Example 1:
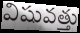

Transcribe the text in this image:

విషువత్తు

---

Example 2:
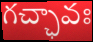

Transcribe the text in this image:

గచ్ఛావః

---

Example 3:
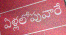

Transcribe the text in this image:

ఏళ్లలోపువారే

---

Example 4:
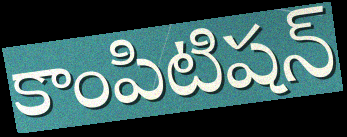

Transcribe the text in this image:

కాంపిటిషన్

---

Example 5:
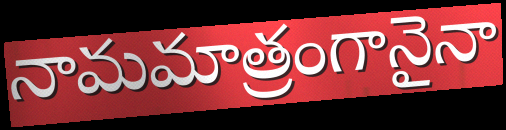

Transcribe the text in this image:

నామమాత్రంగానైనా